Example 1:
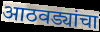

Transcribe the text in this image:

आठवड्यांचा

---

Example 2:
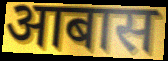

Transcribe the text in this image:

आबास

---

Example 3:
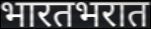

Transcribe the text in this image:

भारतभरात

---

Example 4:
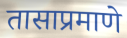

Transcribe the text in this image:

तासाप्रमाणे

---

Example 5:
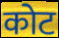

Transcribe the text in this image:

कोट